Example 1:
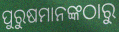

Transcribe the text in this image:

ପୁରୁଷମାନଙ୍କଠାରୁ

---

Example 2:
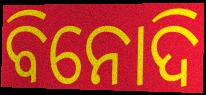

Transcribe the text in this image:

ବିନୋଦି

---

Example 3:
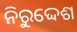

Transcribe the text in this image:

ନିରୁଦ୍ଦେଶ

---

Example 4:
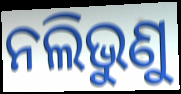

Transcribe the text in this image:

ନଲିଭୁଣୁ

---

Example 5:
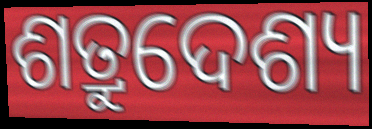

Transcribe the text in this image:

ଶତ୍ରୁଦେଶ୍ୟ